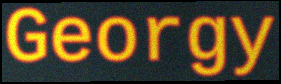
Georgy